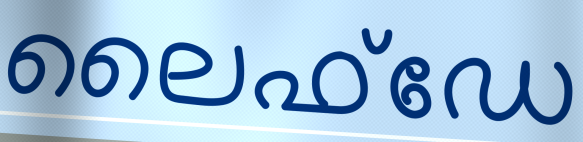
ലൈഫ്ഡേ